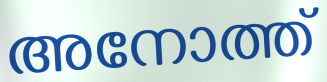
അനോത്ത്